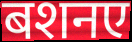
बशनए